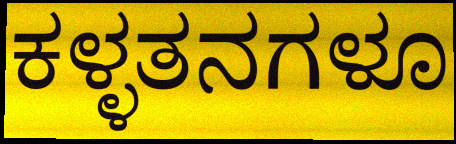
ಕಳ್ಳತನಗಳೂ